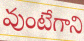
వుంటేగాని